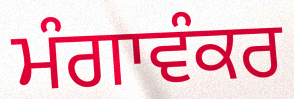
ਮੰਗਾਵੰਕਰ